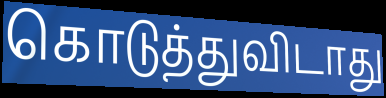
கொடுத்துவிடாது